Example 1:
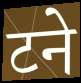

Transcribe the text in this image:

टने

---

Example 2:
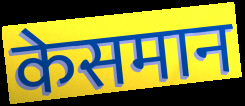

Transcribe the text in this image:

केसमान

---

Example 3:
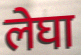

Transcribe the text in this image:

लेघा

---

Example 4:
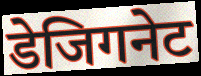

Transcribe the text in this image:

डेजिगनेट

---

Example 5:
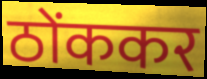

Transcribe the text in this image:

ठोंककर